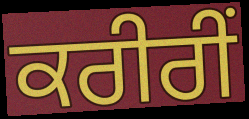
ਕਰੀਰੀਂ